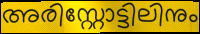
അരിസ്റ്റോട്ടിലിനും